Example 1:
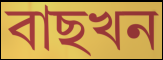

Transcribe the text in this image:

বাছখন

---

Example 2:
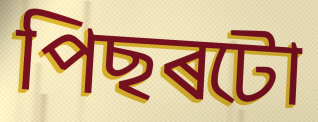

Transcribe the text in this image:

পিছৰটো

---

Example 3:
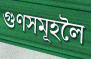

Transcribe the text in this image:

গুণসমূহলৈ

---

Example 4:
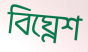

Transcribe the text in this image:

বিঘ্নেশ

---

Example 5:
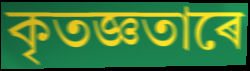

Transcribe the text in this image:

কৃতজ্ঞতাৰে